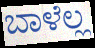
ಬಾಳೆಲ್ಲ